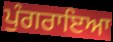
ਪੁੰਗਰਾਇਆ